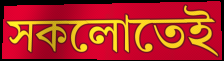
সকলোতেই